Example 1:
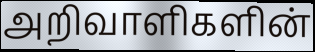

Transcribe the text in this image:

அறிவாளிகளின்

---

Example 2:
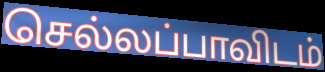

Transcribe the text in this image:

செல்லப்பாவிடம்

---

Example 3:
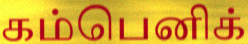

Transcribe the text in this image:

கம்பெனிக்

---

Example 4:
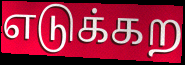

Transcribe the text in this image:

எடுக்கற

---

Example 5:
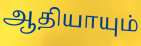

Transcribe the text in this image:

ஆதியாயும்